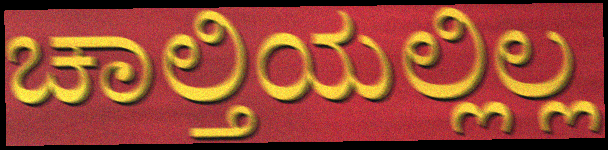
ಚಾಲ್ತಿಯಲ್ಲಿಲ್ಲ